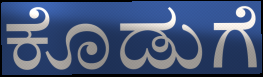
ಕೊಡುಗೆ